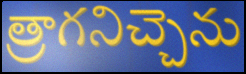
త్రాగనిచ్చెను